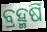
ବ୍ରହ୍ମର୍ଷି